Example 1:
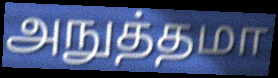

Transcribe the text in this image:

அநுத்தமா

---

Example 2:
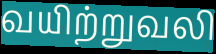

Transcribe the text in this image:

வயிற்றுவலி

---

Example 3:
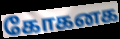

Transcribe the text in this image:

கோகனக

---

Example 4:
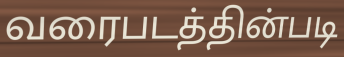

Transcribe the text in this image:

வரைபடத்தின்படி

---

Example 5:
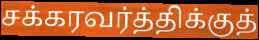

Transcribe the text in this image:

சக்கரவர்த்திக்குத்